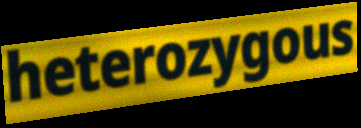
heterozygous